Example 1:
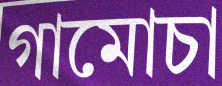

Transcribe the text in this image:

গামোচা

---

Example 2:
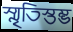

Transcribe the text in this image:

স্মৃতিস্তম্ভ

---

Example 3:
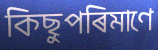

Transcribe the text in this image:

কিছুপৰিমাণে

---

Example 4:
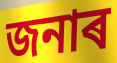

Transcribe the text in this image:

জনাৰ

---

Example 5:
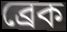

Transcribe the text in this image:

ব্ৰেক